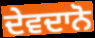
ਦੇਵਦਾਨੋ